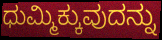
ಧುಮ್ಮಿಕ್ಕುವುದನ್ನು